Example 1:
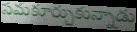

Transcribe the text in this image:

సమకూర్చుకున్నాడు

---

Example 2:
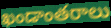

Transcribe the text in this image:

ఖండాంతరాలు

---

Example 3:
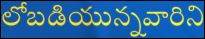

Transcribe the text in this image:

లోబడియున్నవారిని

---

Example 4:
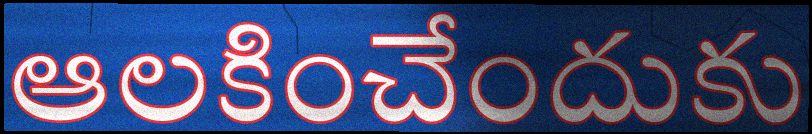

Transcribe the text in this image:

ఆలకించేందుకు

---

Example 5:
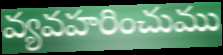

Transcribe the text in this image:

వ్యవహరించుము